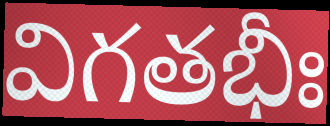
విగతభీః